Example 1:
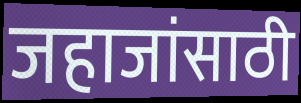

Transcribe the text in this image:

जहाजांसाठी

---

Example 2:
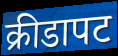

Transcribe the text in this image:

क्रीडापट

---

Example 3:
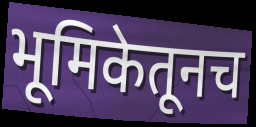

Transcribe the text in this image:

भूमिकेतूनच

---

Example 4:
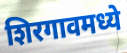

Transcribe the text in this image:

शिरगावमध्ये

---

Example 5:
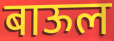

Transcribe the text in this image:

बाऊल